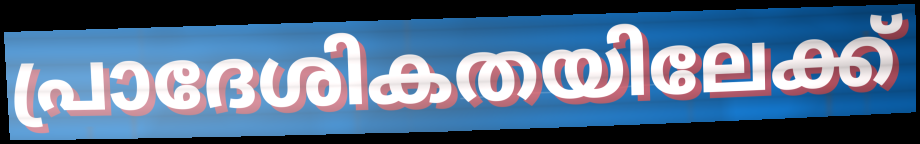
പ്രാദേശികതയിലേക്ക്